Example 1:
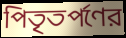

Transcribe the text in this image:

পিতৃতর্পণের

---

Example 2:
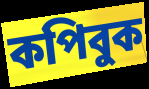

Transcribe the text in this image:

কপিবুক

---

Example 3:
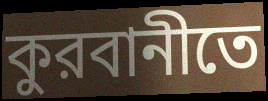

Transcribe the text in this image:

কুরবানীতে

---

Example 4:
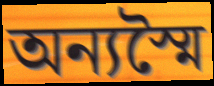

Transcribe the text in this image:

অন্যস্মৈ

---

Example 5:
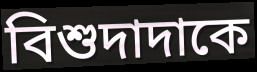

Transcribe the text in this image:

বিশুদাদাকে